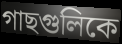
গাছগুলিকে